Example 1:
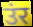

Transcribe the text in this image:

उंर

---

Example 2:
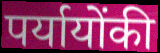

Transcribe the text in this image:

पर्यायोंकी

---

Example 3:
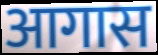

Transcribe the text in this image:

आगास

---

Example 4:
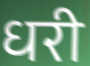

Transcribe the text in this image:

धरी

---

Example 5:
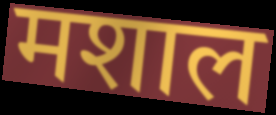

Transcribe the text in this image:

मशाल